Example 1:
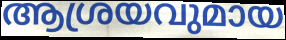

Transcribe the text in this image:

ആശ്രയവുമായ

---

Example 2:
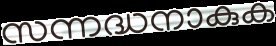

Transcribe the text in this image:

സന്നദ്ധനാകുക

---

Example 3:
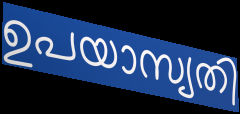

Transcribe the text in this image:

ഉപയാസ്യതി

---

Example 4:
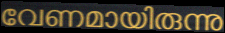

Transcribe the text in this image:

വേണമായിരുന്നു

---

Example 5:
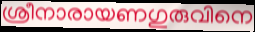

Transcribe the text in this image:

ശ്രീനാരായണഗുരുവിനെ